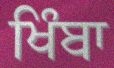
ਖਿੰਬਾ